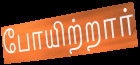
போயிற்றார்